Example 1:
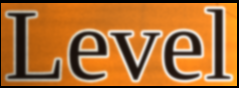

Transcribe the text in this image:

Level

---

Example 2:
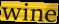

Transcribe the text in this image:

wine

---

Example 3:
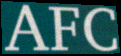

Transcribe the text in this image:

AFC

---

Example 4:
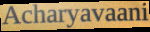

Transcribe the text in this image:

Acharyavaani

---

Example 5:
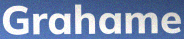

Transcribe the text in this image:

Grahame